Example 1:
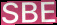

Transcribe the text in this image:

SBE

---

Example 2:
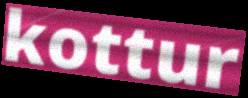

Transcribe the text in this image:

kottur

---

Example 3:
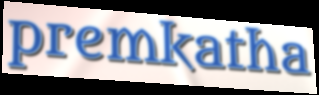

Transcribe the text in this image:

premkatha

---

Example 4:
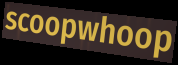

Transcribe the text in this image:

scoopwhoop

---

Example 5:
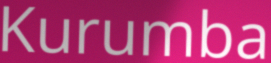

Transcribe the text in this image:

Kurumba